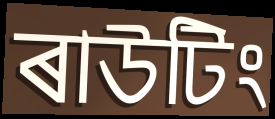
ৰাউটিং